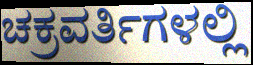
ಚಕ್ರವರ್ತಿಗಳಲ್ಲಿ